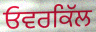
ਓਵਰਕਿੱਲ